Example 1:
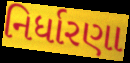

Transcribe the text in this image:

નિર્ધારણા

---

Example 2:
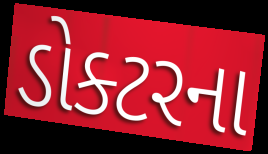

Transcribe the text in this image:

ડોક્ટરના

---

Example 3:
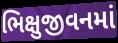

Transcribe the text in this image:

ભિક્ષુજીવનમાં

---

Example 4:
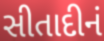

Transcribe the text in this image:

સીતાદીનં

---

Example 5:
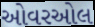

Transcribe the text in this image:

ઓવરઓલ